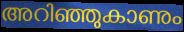
അറിഞ്ഞുകാണും